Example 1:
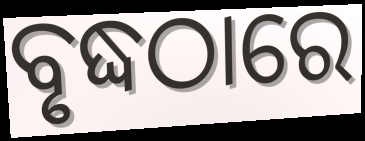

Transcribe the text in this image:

ବୃଦ୍ଧଠାରେ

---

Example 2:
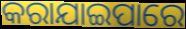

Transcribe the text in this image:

କରାଯାଇପାରେ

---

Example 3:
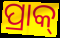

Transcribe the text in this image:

ପ୍ରାକ୍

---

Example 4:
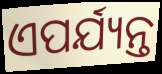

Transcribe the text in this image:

ଏପର୍ଯ୍ୟନ୍ତ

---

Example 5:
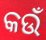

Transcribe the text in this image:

କଉଁ